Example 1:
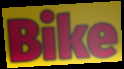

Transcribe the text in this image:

Bike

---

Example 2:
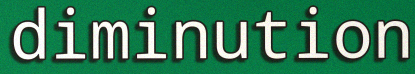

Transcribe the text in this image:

diminution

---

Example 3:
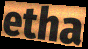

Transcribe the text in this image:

etha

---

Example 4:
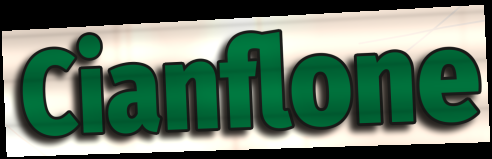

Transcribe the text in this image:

Cianflone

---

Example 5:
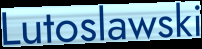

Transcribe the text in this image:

Lutoslawski